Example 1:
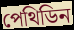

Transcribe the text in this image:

পেথিডিন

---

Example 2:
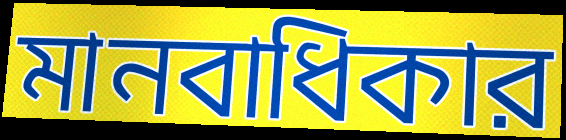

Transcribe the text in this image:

মানবাধিকার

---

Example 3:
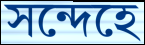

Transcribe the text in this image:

সন্দেহে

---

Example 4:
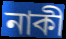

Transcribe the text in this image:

নাকী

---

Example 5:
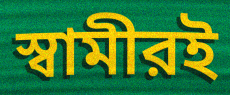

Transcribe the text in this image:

স্বামীরই